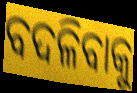
ବଦଳିବାକୁ